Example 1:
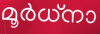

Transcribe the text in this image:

മൂർധ്നാ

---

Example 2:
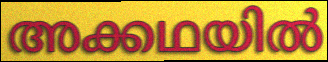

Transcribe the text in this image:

അക്കഥയിൽ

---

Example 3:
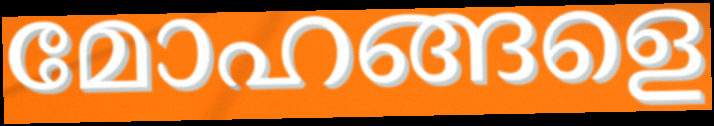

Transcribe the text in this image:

മോഹങ്ങളെ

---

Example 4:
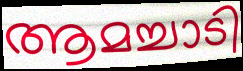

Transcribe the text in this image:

ആമച്ചാടി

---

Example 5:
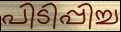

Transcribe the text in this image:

പിടിപ്പിച്ച